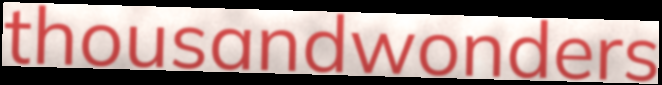
thousandwonders